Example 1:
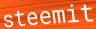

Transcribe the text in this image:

steemit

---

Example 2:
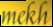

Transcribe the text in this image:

mekh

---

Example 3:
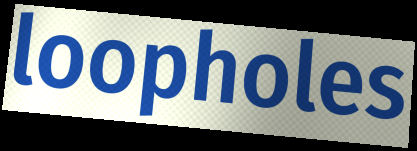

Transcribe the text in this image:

loopholes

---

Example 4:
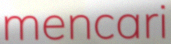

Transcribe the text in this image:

mencari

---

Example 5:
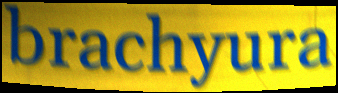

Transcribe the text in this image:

brachyura